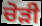
ਚੋੜੀ